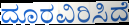
ದೂರವಿರಿಸಿದೆ